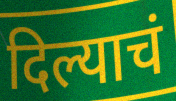
दिल्याचं